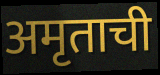
अमृताची